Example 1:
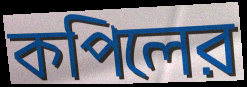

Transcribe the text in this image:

কপিলের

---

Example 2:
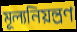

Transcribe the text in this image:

মূল্যনিয়ন্ত্রণ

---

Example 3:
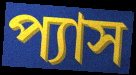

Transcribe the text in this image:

প্যাস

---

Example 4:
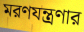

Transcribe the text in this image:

মরণযন্ত্রণার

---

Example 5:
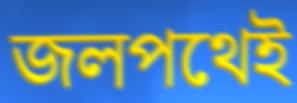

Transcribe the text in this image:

জলপথেই